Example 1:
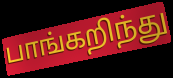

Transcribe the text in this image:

பாங்கறிந்து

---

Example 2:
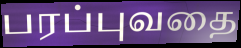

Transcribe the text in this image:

பரப்புவதை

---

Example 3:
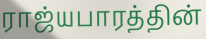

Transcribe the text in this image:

ராஜ்யபாரத்தின்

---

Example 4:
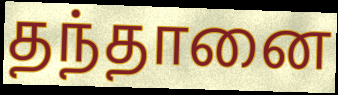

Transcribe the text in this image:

தந்தானை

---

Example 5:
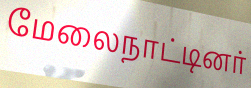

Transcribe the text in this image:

மேலைநாட்டினர்